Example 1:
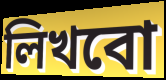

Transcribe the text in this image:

লিখবো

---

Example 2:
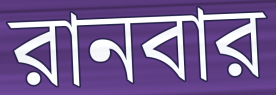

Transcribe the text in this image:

রানবার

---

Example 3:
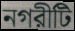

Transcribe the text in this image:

নগরীটি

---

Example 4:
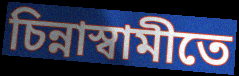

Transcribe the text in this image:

চিন্নাস্বামীতে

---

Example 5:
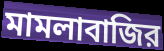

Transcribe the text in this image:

মামলাবাজির